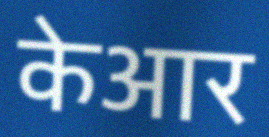
केआर